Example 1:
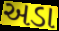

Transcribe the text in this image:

અડા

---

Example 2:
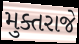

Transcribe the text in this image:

મુક્તરાજે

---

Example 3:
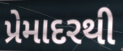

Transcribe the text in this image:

પ્રેમાદરથી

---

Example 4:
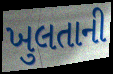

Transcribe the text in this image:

ખુલતાની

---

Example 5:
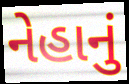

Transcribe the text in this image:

નેહાનું